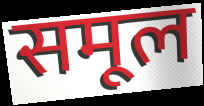
समूल